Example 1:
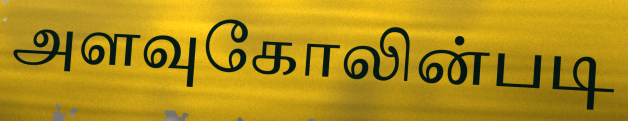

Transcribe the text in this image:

அளவுகோலின்படி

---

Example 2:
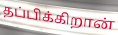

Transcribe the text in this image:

தப்பிக்கிறான்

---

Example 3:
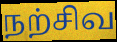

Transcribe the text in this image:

நற்சிவ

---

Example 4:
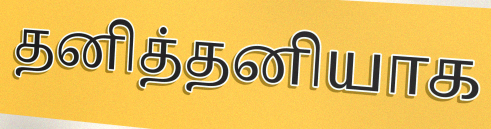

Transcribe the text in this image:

தனித்தனியாக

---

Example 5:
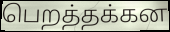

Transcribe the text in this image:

பெறத்தக்கன